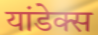
यांडेक्स